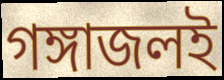
গঙ্গাজলই